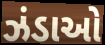
ઝંડાઓ